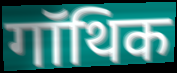
गॉथिक